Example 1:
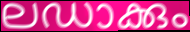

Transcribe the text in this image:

ലഡാക്കും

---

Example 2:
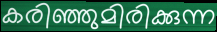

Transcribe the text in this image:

കരിഞ്ഞുമിരിക്കുന്ന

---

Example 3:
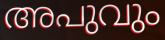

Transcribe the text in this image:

അപുവും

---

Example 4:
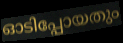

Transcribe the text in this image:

ഓടിപ്പോയതും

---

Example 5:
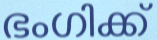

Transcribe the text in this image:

ഭംഗിക്ക്